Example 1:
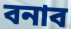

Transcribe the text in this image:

বনাব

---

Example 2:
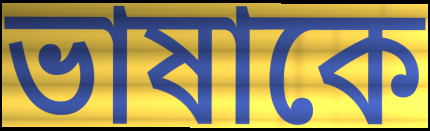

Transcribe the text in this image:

ভাষাকে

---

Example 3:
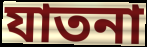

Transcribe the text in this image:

যাতনা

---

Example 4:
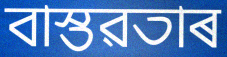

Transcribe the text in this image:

বাস্তৱতাৰ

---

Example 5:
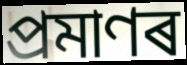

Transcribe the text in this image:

প্ৰমাণৰ